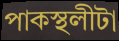
পাকস্থলীটা